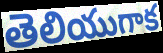
తెలియుగాక